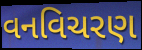
વનવિચરણ